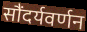
सौंदर्यवर्णन